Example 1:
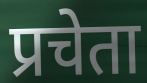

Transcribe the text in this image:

प्रचेता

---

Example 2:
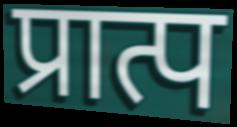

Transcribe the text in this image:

प्रात्प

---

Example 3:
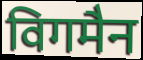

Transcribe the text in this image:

विगमैन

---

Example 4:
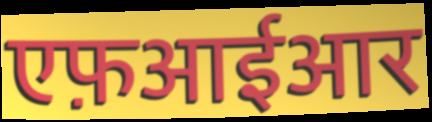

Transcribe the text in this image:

एफ़आईआर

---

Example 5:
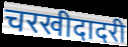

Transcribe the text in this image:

चरखीदादरी